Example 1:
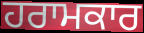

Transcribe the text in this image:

ਹਰਾਮਕਾਰ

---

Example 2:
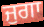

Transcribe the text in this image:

ਜੁਗਾ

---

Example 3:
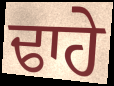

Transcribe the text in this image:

ਢਾਹੇ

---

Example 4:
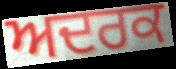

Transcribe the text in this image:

ਅਦਰਕ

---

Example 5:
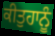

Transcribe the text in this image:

ਕੀਤੁਹਾਨੂੰ